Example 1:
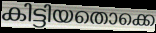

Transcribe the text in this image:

കിട്ടിയതൊക്കെ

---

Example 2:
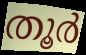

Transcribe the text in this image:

തൂർ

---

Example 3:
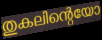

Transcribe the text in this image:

തുകലിന്റെയോ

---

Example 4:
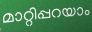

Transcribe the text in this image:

മാറ്റിപ്പറയാം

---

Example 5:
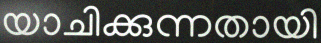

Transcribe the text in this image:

യാചിക്കുന്നതായി